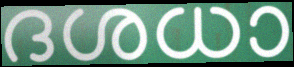
ദശധാ